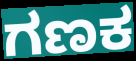
ಗಣಕ